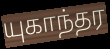
யுகாந்தர